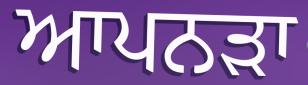
ਆਪਨੜਾ